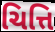
ચિત્તિ